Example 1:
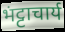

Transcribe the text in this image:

भंट्टाचार्य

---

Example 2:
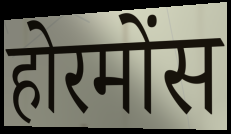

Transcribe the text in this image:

होरमोंस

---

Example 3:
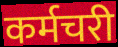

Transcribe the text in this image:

कर्मचरी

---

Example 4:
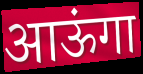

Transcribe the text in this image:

आऊंगा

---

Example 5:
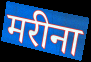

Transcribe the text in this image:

मरीना